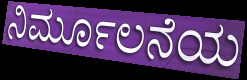
ನಿರ್ಮೂಲನೆಯ